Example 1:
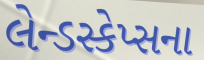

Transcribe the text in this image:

લેન્ડસ્કેપ્સના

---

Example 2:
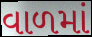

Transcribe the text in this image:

વાળમાં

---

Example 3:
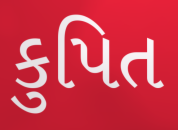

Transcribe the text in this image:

કુપિત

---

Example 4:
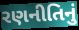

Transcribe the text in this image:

રણનીતિનું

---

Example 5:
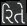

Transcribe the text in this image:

રિતે